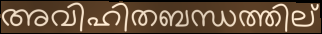
അവിഹിതബന്ധത്തില്